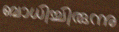
ബാധിച്ചിരുന്നു